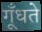
गूँधते